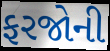
ફરજોની